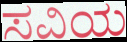
ಸವಿಯ